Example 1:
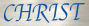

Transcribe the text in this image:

CHRIST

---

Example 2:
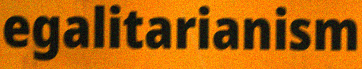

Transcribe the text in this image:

egalitarianism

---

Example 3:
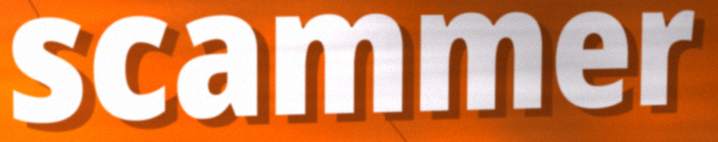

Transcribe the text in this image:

scammer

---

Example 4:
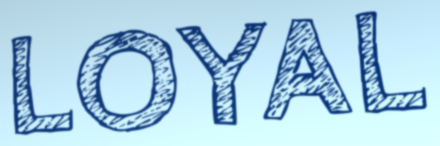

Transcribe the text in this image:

LOYAL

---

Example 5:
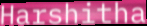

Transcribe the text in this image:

Harshitha